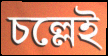
চল্লেই